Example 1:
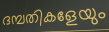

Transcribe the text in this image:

ദമ്പതികളേയും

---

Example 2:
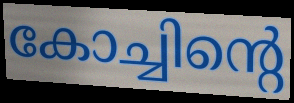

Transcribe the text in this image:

കോച്ചിന്റെ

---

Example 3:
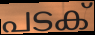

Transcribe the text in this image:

പടക്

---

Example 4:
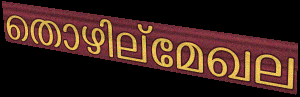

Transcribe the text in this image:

തൊഴില്മേഖല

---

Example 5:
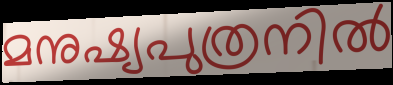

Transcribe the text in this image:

മനുഷ്യപുത്രനിൽ